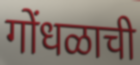
गोंधळाची